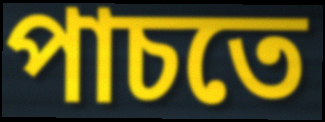
পাচতে